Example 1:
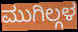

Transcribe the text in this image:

ಮುಗಿಲ್ಗಳ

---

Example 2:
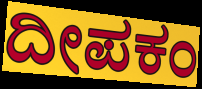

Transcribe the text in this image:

ದೀಪಕಂ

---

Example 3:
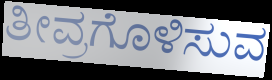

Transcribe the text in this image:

ತೀವ್ರಗೊಳಿಸುವ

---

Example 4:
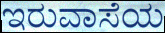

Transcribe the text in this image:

ಇರುವಾಸೆಯ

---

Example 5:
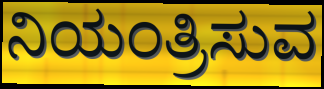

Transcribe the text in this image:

ನಿಯಂತ್ರಿಸುವ